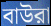
বাউরা